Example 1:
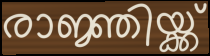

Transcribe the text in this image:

രാജ്ഞിയ്ക്ക്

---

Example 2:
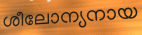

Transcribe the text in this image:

ശീലോന്യനായ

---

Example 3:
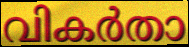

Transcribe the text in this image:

വികർതാ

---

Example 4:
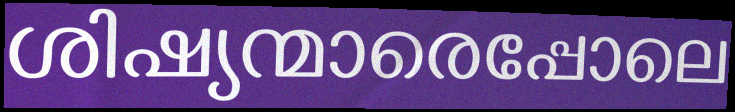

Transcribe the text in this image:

ശിഷ്യന്മാരെപ്പോലെ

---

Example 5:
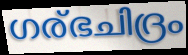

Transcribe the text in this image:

ഗര്ഭചിദ്രം